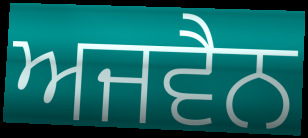
ਅਜਵੈਨ